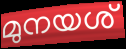
മുനയശ്